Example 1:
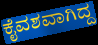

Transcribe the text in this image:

ಕೈವಶವಾಗಿದ್ದ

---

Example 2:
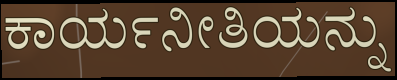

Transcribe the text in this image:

ಕಾರ್ಯನೀತಿಯನ್ನು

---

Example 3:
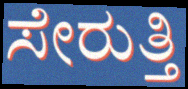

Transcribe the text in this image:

ಸೇರುತ್ತಿ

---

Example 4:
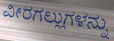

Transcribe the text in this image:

ವೀರಗಲ್ಲುಗಳನ್ನು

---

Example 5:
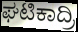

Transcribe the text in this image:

ಘಟಿಕಾದ್ರಿ